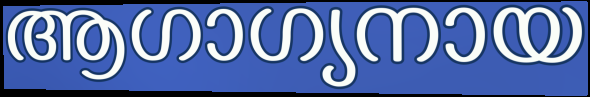
ആഗാഗ്യനായ